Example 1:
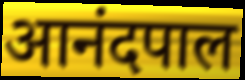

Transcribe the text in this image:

आनंदपाल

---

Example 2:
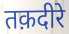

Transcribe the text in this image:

तक़दीरे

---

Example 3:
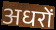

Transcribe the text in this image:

अधरों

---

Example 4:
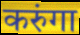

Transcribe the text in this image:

करुंगा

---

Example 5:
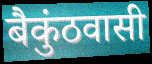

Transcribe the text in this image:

बैकुंठवासी